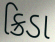
ક્રિડા